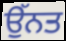
ਉੱਨਤ